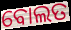
ବୋଲତ